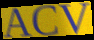
ACV